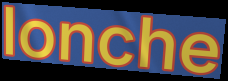
lonche